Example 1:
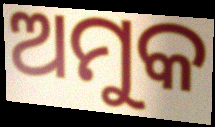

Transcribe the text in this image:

ଅମୁକ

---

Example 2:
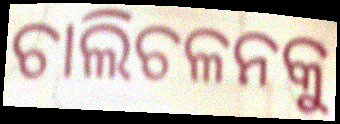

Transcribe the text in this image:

ଚାଲିଚଳନକୁ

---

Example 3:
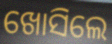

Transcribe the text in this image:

ଖୋସିଲେ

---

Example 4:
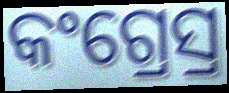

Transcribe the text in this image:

କଂଗ୍ରେସ୍ର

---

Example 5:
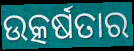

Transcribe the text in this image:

ଉତ୍କର୍ଷତାର